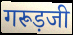
गरूड़जी